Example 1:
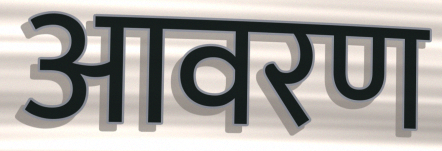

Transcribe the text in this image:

आवरण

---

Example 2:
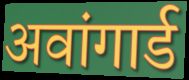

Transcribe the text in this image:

अवांगार्ड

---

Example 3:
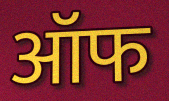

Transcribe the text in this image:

ऑफ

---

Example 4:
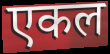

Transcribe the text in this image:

एकल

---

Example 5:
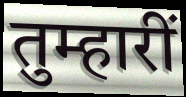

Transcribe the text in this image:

तुम्हारीं